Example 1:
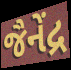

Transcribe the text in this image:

જૈનેંદ્ર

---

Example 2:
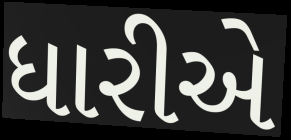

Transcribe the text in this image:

ધારીએ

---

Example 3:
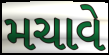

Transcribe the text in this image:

મચાવે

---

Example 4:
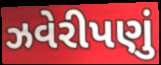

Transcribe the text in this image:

ઝવેરીપણું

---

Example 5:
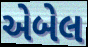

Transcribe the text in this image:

એબેલ